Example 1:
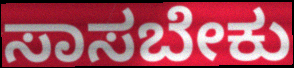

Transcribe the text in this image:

ಸಾಸಬೇಕು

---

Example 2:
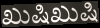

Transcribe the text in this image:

ಖುಷಿಖುಷಿ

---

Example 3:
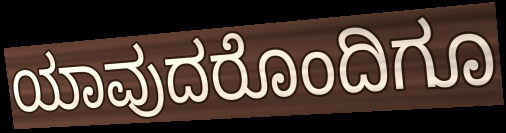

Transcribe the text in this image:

ಯಾವುದರೊಂದಿಗೂ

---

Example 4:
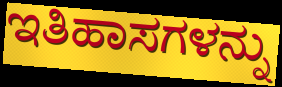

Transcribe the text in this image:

ಇತಿಹಾಸಗಳನ್ನು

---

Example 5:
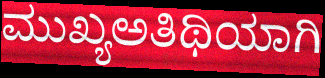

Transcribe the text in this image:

ಮುಖ್ಯಅತಿಥಿಯಾಗಿ